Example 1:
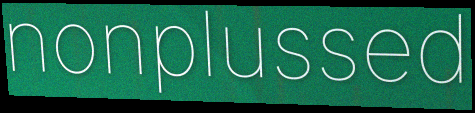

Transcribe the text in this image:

nonplussed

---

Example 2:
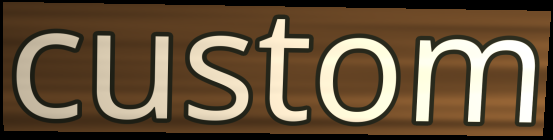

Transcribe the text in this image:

custom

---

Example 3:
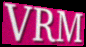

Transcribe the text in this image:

VRM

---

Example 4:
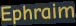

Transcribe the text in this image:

Ephraim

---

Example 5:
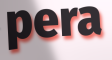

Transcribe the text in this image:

pera